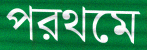
পরথমে